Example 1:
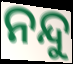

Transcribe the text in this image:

ନନ୍ଦୁ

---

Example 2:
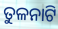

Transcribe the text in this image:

ତୁଳନାଟି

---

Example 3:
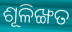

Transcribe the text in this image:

ଶୂଳିଙ୍ଖତ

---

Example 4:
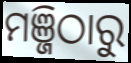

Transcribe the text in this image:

ମଞ୍ଜିଠାରୁ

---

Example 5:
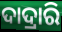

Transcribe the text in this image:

ଦାଦ୍ରାରି